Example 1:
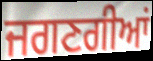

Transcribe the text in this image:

ਜਗਣਗੀਆਂ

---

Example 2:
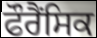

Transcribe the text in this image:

ਫੌਰੈਂਸਿਕ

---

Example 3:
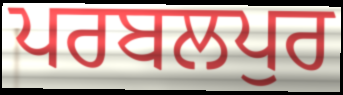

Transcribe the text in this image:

ਪਰਬਲਪੁਰ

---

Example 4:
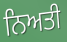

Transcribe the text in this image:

ਨਿਅਤੀ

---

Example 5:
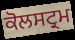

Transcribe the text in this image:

ਕੋਲਸਟ੍ਰਮ